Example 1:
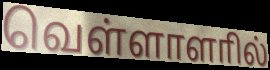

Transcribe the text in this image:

வெள்ளாளரில்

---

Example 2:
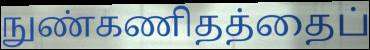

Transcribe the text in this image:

நுண்கணிதத்தைப்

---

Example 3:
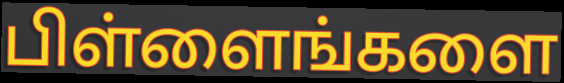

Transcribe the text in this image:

பிள்ளைங்களை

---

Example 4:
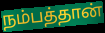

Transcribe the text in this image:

நம்பத்தான்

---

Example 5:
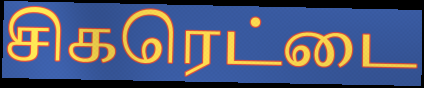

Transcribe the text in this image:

சிகரெட்டை